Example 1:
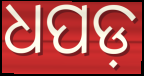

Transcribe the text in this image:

ଧପଡ଼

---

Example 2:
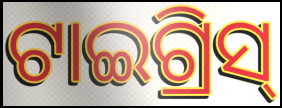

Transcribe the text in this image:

ଟାଇଗ୍ରିସ୍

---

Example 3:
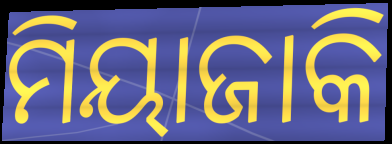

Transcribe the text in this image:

ମିୟାଜାକି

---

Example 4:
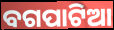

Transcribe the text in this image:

ବଗପାଟିଆ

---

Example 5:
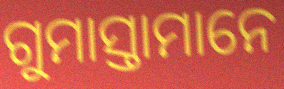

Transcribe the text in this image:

ଗୁମାସ୍ତାମାନେ